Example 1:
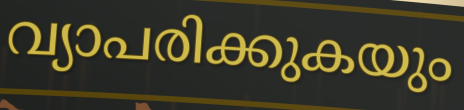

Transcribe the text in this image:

വ്യാപരിക്കുകയും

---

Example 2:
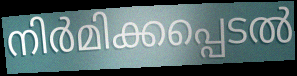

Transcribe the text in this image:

നിർമിക്കപ്പെടൽ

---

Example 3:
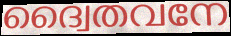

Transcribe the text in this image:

ദ്വൈതവനേ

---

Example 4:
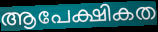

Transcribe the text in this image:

ആപേക്ഷികത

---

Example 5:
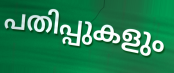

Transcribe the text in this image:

പതിപ്പുകളും